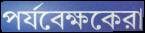
পর্যবেক্ষকেরা